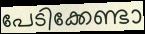
പേടിക്കേണ്ടാ